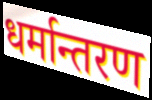
धर्मान्तरण